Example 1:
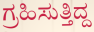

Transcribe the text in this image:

ಗ್ರಹಿಸುತ್ತಿದ್ದ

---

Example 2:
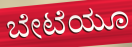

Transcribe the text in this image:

ಬೇಟೆಯೂ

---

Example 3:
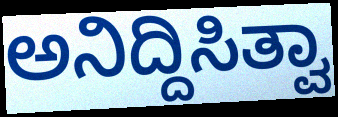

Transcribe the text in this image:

ಅನಿದ್ದಿಸಿತ್ವಾ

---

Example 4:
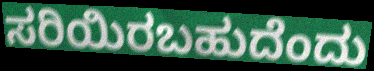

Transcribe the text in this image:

ಸರಿಯಿರಬಹುದೆಂದು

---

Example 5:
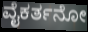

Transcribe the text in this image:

ವೈಕರ್ತನೋ